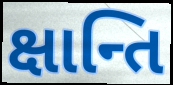
ક્ષાન્તિ